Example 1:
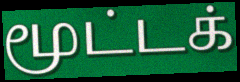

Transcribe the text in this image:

மூட்டக்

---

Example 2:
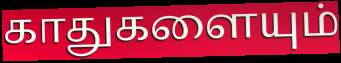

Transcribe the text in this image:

காதுகளையும்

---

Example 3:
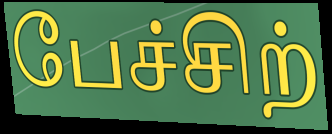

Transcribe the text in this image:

பேச்சிற்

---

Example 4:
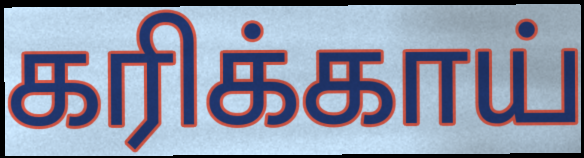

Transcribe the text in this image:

கரிக்காய்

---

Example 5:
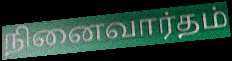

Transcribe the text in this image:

நினைவார்தம்